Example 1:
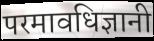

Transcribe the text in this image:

परमावधिज्ञानी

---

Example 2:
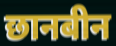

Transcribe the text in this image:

छानबीन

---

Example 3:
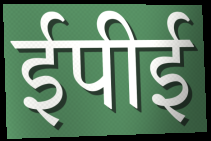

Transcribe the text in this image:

ईपीई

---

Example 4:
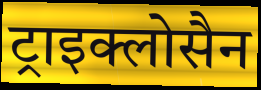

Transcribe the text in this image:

ट्राइक्लोसैन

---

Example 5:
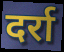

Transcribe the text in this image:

दर्रा